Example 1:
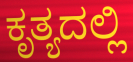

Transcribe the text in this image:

ಕೃತ್ಯದಲ್ಲಿ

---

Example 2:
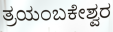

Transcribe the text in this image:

ತ್ರಯಂಬಕೇಶ್ವರ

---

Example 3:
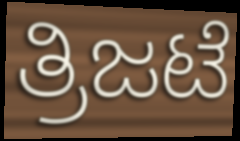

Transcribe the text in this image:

ತ್ರಿಜಟೆ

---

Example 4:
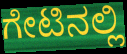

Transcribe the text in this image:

ಗೇಟಿನಲ್ಲಿ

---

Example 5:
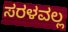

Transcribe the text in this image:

ಸರಳವಲ್ಲ